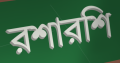
রশারশি